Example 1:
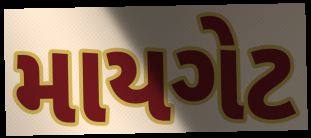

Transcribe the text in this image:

માયગેટ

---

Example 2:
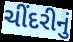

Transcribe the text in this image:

ચીંદરીનું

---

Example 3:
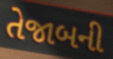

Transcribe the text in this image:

તેજાબની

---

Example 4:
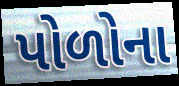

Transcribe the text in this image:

પોળોના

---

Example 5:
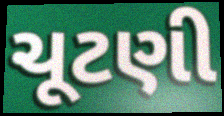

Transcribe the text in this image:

ચૂટણી